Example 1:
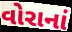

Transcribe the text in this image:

વોરાનાં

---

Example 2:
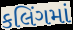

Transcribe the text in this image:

કલિંગમાં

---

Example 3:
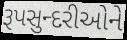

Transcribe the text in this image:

રૂપસુન્દરીઓને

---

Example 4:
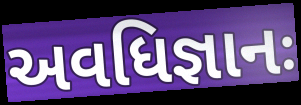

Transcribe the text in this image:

અવધિજ્ઞાનઃ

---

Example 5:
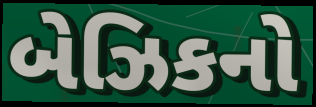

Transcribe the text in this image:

બેઝિકનો